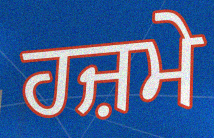
ਹਜ਼ਮੇ